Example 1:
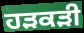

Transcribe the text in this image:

ਹੜਕੜੀ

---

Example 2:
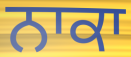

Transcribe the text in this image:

ਨਾਕਾ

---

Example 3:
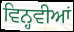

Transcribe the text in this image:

ਵਿਨ੍ਹਵੀਆਂ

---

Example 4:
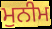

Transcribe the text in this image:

ਮੁਨੀਮ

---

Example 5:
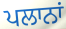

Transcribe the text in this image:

ਪਲਾਨਾਂ